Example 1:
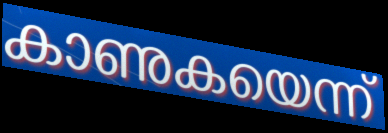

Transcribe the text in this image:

കാണുകയെന്ന്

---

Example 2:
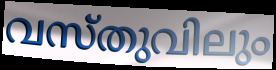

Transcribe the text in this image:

വസ്തുവിലും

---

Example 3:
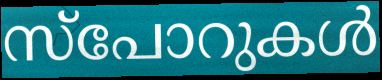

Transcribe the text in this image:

സ്പോറുകൾ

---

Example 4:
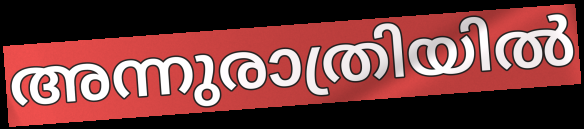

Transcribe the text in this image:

അന്നുരാത്രിയിൽ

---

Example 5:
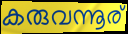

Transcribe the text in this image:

കരുവന്നൂര്